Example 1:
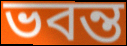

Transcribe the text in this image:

ভবন্ত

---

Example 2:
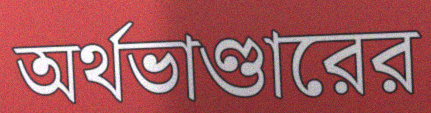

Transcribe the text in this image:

অর্থভাণ্ডারের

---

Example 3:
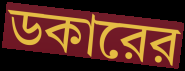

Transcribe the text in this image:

ডকারের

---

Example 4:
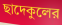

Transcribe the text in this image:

ছাদেকুলের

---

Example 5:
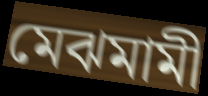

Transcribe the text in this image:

মেঝমামী